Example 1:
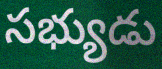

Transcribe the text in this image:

సభ్యుడు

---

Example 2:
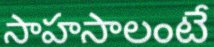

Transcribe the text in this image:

సాహసాలంటే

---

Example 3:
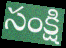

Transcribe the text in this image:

సంక్షి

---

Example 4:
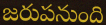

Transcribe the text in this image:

జరుపనుంది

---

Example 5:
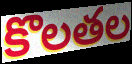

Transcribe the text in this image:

కొలతల